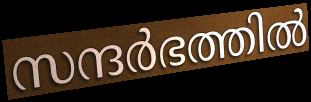
സന്ദർഭത്തിൽ